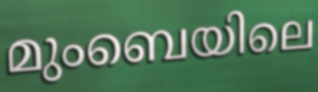
മുംബെയിലെ